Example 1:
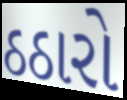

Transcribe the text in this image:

ઠઠારો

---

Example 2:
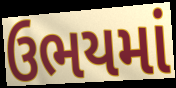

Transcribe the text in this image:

ઉભયમાં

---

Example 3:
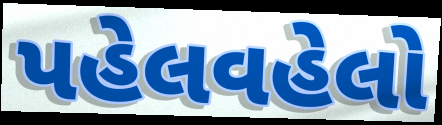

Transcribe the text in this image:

પહેલવહેલો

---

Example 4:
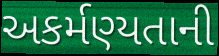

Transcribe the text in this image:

અકર્મણ્યતાની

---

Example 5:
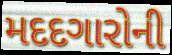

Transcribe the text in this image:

મદદગારોની